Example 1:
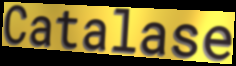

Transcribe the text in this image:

Catalase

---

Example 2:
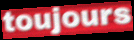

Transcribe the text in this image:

toujours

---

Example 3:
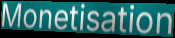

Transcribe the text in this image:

Monetisation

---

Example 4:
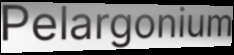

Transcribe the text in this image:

Pelargonium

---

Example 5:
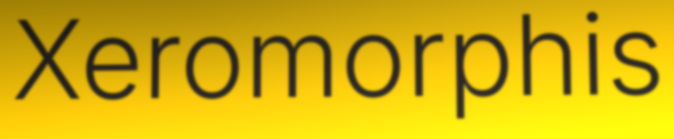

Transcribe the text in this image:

Xeromorphis